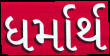
ધર્માર્થ